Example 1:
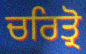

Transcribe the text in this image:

ਚਰਿਤ੍ਰੋ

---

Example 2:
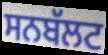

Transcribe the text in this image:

ਸਨਬੱਲਟ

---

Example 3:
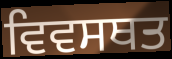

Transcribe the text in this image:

ਵਿਵਸਥਤ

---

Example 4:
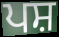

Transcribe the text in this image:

ਪਸ਼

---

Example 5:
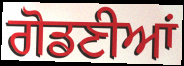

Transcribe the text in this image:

ਗੋਡਣੀਆਂ